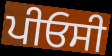
ਪੀਓਸੀ